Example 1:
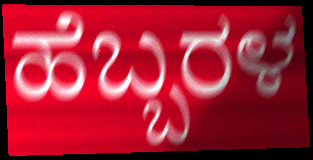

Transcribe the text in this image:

ಹೆಬ್ಬರಳ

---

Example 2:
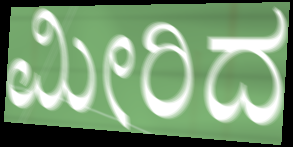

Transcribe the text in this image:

ಮೀರಿದ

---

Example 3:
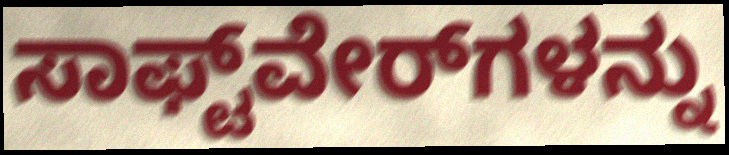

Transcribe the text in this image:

ಸಾಫ್ಟ್‌ವೇರ್‌ಗಳನ್ನು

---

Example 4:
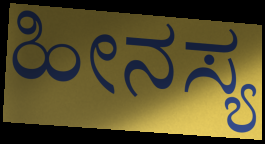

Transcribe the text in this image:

ಹೀನಸ್ಯ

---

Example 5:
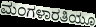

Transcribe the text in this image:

ಮಂಗಳಾರತಿಯೂ